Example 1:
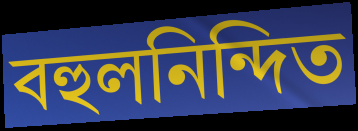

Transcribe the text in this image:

বহুলনিন্দিত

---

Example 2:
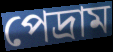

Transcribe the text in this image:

পেদ্রাম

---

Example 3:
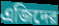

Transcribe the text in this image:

এজিদের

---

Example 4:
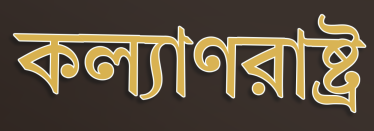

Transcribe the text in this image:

কল্যাণরাষ্ট্র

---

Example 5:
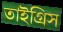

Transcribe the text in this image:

তাইগ্রিস